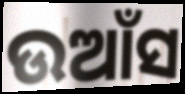
ଉଆଁସ